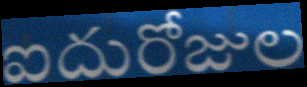
ఐదురోజుల